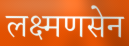
लक्ष्मणसेन